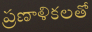
ప్రణాళికలతో